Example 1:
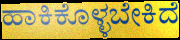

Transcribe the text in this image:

ಹಾಕಿಕೊಳ್ಳಬೇಕಿದೆ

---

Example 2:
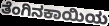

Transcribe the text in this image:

ತೆಂಗಿನಕಾಯಿಯ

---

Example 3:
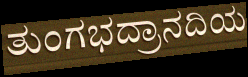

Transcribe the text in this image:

ತುಂಗಭದ್ರಾನದಿಯ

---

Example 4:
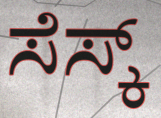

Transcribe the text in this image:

ಸೆಸ್ಕ್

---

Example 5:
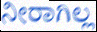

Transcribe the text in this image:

ನೀರಾಗಿಲ್ಲ